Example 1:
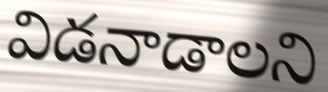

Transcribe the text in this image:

విడనాడాలని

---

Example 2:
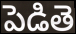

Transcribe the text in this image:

పెడితె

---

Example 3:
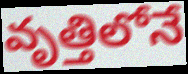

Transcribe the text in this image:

వృత్తిలోనే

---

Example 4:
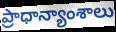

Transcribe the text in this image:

ప్రాధాన్యాంశాలు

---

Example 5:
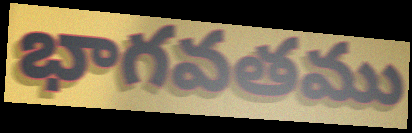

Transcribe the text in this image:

భాగవతము